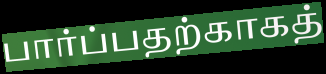
பார்ப்பதற்காகத்